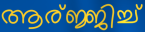
ആര്ജ്ജിച്ച്